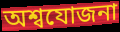
অশ্বযোজনা